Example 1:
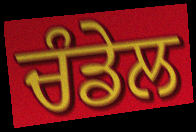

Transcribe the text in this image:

ਚੰਡੇਲ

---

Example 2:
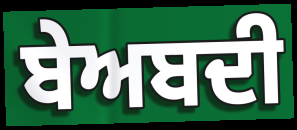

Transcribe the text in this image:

ਬੇਅਬਦੀ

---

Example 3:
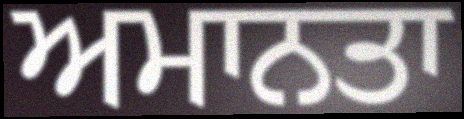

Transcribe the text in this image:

ਅਮਾਨਤਾ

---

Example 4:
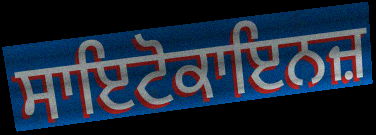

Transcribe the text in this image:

ਸਾਇਟੋਕਾਇਨਜ਼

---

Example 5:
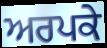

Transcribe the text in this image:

ਅਰਪਕੇ